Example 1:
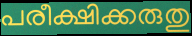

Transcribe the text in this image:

പരീക്ഷിക്കരുതു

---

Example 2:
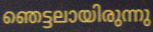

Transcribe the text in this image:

ഞെട്ടലായിരുന്നു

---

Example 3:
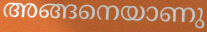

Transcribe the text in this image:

അങ്ങനെയാണു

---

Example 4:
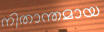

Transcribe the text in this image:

നിതാന്തമായ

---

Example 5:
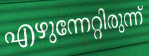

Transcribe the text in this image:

എഴുന്നേറ്റിരുന്ന്